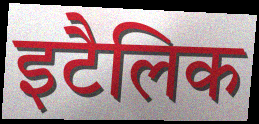
इटैलिक